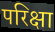
परिक्षा